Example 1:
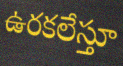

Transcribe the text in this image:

ఉరకలేస్తూ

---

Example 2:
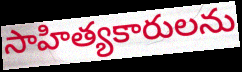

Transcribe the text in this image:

సాహిత్యకారులను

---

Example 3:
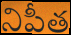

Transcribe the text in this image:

నిపీత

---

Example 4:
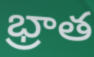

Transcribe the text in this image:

భ్రాత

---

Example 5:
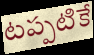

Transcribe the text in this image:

టప్పటికే